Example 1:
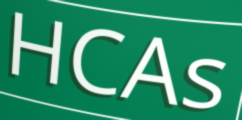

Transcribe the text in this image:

HCAs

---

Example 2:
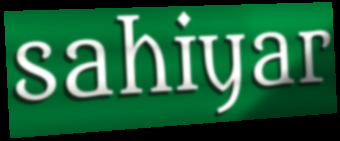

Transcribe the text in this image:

sahiyar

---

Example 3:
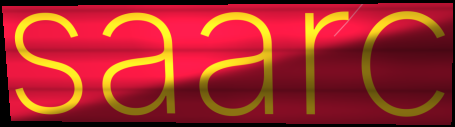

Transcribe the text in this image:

saarc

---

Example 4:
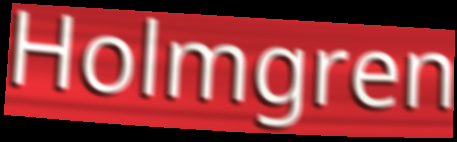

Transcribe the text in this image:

Holmgren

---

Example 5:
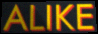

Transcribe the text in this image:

ALIKE